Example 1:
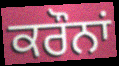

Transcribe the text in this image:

ਕਰੌਨਾਂ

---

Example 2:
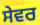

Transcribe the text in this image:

ਸੇਵਰ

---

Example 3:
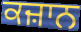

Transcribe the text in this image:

ਕਜ਼ਾਨ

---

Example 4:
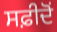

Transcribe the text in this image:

ਸਫ਼ੀਦੋਂ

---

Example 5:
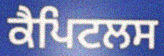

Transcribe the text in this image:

ਕੈਪਿਟਲਸ